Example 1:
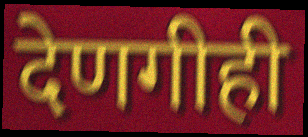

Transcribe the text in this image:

देणगीही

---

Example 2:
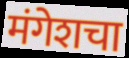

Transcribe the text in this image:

मंगेशचा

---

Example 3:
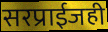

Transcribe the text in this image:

सरप्राईजही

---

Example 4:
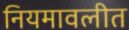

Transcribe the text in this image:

नियमावलीत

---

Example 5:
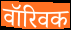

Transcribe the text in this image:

वॉरिवक